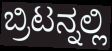
ಬ್ರಿಟನ್ನಲ್ಲಿ